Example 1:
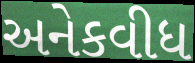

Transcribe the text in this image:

અનેકવીધ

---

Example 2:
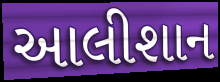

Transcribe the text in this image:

આલીશાન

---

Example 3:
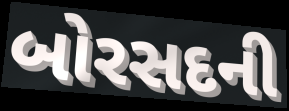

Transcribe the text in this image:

બોરસદની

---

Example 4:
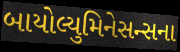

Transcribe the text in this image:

બાયોલ્યુમિનેસન્સના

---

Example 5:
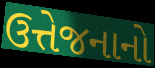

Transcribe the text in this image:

ઉત્તેજનાનો